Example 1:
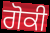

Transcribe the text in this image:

ਗੋਕੀ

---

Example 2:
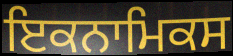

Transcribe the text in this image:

ਇਕਨਾਮਿਕਸ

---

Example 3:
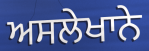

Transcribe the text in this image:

ਅਸਲੇਖਾਨੇ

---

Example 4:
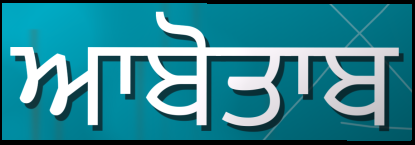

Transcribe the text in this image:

ਆਬੋਤਾਬ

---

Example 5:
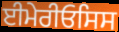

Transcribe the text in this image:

ਈਮੇਰੀਓਸਿਸ